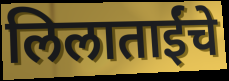
लिलाताईंचे